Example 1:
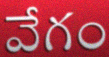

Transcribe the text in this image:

వేగం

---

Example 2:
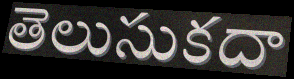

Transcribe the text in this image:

తెలుసుకదా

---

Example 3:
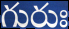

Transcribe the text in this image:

గురుః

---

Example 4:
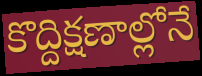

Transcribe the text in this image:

కొద్దిక్షణాల్లోనే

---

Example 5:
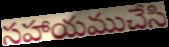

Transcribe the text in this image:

సహాయముచేసి